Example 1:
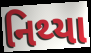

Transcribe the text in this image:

નિથ્યા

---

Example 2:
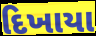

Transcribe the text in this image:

દિખાયા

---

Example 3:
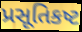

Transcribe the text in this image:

પ્રસૂતિકષ્ટ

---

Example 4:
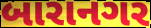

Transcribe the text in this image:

બારાનગર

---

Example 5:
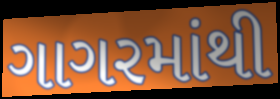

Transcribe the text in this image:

ગાગરમાંથી